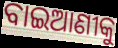
ବାଇଆଣୀକୁ